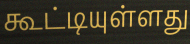
கூட்டியுள்ளது